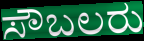
ಸೌಬಲರು